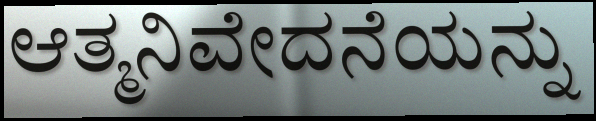
ಆತ್ಮನಿವೇದನೆಯನ್ನು